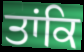
ਤਾਂਕਿ